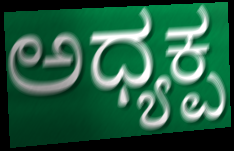
ಅಧ್ಯಕ್ಪ